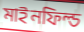
মাইনফিল্ড